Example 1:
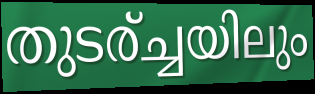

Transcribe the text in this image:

തുടര്ച്ചയിലും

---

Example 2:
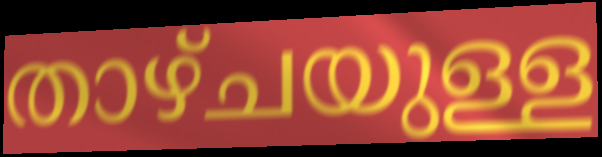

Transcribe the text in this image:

താഴ്ചയുള്ള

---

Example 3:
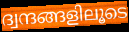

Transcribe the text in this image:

ദ്വന്ദങ്ങളിലൂടെ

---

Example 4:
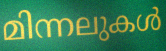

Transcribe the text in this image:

മിന്നലുകൾ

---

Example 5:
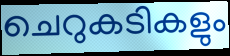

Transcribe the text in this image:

ചെറുകടികളും